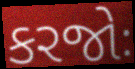
કરજોઃ